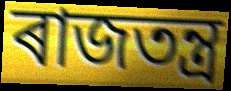
ৰাজতন্ত্ৰ